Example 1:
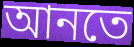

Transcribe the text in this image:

আনতে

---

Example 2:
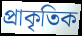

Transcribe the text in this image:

প্রাকৃতিক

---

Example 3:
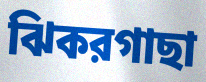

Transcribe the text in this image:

ঝিকরগাছা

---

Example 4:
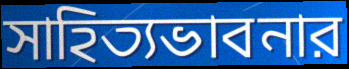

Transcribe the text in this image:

সাহিত্যভাবনার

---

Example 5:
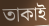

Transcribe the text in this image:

তাকাই